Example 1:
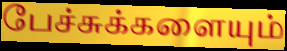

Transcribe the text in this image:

பேச்சுக்களையும்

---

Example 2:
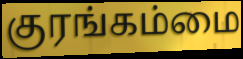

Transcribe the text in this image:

குரங்கம்மை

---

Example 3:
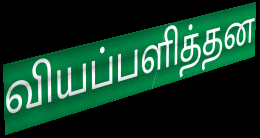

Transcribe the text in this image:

வியப்பளித்தன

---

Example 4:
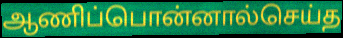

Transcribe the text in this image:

ஆணிப்பொன்னால்செய்த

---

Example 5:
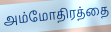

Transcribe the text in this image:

அம்மோதிரத்தை